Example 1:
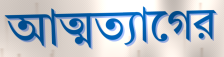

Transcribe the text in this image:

আত্মত্যাগের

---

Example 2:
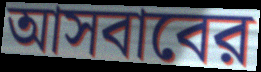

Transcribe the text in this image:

আসবাবের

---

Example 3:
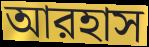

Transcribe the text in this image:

আরহাস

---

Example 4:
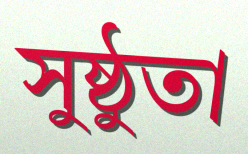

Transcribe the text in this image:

সুষ্ঠুতা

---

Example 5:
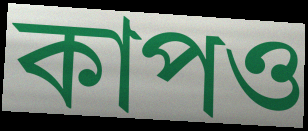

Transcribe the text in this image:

কাপও